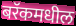
बरॅकमधील